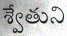
శ్వేతుని